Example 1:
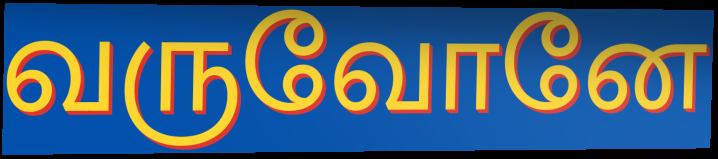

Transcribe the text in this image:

வருவோனே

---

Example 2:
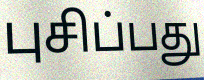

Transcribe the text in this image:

புசிப்பது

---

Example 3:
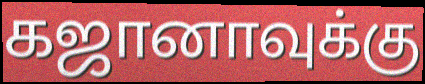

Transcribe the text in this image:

கஜானாவுக்கு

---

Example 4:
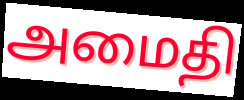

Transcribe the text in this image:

அமைதி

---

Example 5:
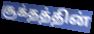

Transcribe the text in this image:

சூக்தத்தின்